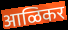
आळिकर